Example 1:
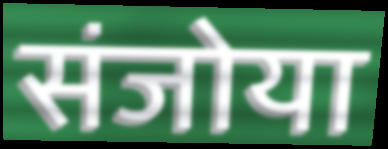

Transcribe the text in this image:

संजोया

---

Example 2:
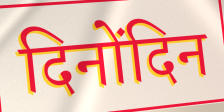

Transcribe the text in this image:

दिनोंदिन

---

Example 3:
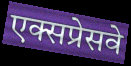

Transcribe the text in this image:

एक्सप्रेसवे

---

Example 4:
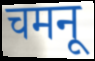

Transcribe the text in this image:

चमनू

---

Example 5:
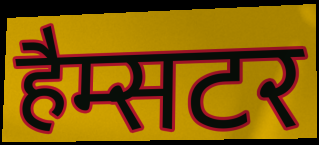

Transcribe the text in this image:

हैम्सटर